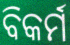
ବିକର୍ମ